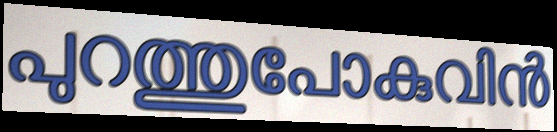
പുറത്തുപോകുവിൻ